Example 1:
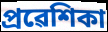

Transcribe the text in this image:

প্ৰৱেশিকা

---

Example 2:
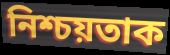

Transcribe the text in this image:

নিশ্চয়তাক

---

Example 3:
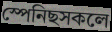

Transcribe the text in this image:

স্পেনিছসকলে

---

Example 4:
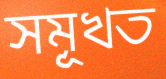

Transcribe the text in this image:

সমূখত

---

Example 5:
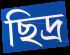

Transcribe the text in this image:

ছিদ্ৰ